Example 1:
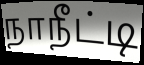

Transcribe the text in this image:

நாநீட்டி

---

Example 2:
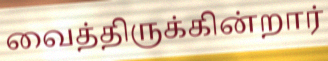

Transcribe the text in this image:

வைத்திருக்கின்றார்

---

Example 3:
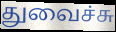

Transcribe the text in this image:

துவைச்சு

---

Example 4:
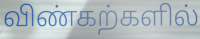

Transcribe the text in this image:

விண்கற்களில்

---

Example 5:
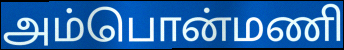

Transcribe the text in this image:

அம்பொன்மணி